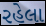
રહેલા